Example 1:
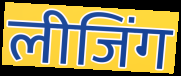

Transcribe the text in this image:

लीजिंग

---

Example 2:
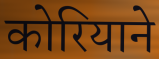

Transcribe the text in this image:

कोरियाने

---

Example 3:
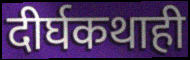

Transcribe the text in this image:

दीर्घकथाही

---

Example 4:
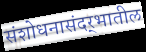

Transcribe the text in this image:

संशोधनासंदर्भातील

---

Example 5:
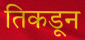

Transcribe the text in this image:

तिकडून